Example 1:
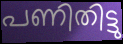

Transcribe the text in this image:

പണിതിട്ടു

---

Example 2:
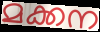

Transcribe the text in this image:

മക്കന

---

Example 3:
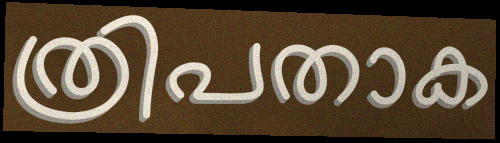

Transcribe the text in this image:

ത്രിപതാക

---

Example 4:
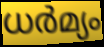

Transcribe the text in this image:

ധർമ്യം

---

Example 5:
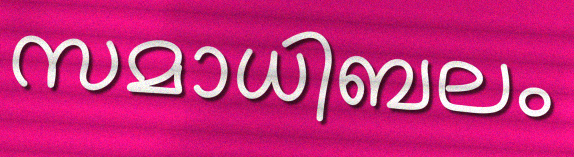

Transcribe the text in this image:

സമാധിബലം